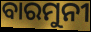
ବାରମୁନୀ